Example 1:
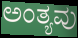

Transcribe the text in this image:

ಅಂತ್ಯವು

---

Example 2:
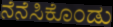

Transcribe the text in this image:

ನೆನೆಸಿಕೊಂಡು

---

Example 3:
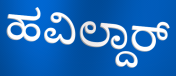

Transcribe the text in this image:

ಹವಿಲ್ದಾರ್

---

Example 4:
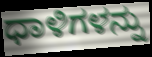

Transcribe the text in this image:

ಧಾಳಿಗಳನ್ನು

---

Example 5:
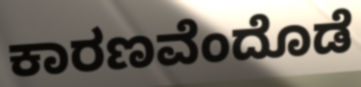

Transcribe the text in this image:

ಕಾರಣವೆಂದೊಡೆ